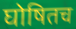
घोषितच